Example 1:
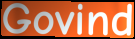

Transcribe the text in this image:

Govind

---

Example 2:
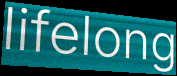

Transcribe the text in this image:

lifelong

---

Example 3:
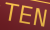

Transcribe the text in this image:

TEN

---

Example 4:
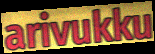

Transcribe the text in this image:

arivukku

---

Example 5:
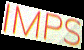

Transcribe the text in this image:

IMPS